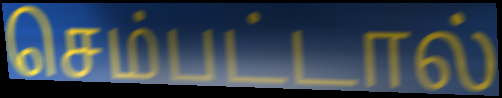
செம்பட்டால்